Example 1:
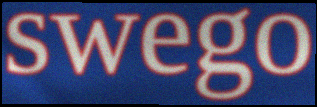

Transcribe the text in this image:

swego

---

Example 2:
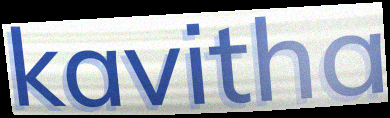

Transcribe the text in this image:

kavitha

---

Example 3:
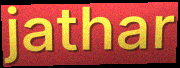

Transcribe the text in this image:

jathar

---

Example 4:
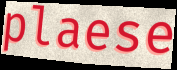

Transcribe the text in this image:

plaese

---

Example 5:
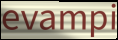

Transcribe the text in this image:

evampi